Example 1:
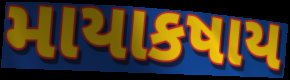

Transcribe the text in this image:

માયાકષાય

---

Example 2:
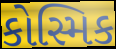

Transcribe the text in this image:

કોસ્મિક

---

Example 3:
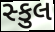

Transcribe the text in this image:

સ્કુલ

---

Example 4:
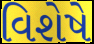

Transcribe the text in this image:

વિશેષે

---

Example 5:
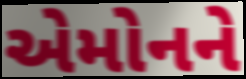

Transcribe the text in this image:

એમોનને